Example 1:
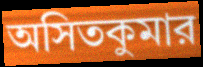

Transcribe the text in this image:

অসিতকুমার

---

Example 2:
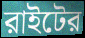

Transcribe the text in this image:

রাইটের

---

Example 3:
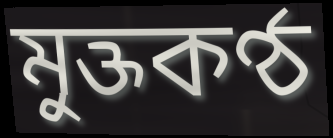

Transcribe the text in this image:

মুক্তকণ্ঠ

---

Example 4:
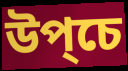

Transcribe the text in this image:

উপ্চে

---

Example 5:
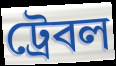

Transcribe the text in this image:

ট্রেবল